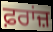
ਫ਼ਰਾਂਜ਼